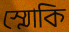
স্মোকি